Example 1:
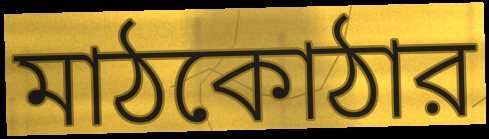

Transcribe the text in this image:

মাঠকোঠার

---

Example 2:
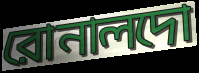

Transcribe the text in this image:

রোনালদো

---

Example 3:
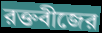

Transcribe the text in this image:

রক্তবীজের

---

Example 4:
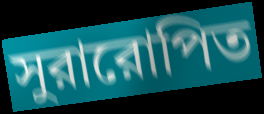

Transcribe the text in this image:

সুরারোপিত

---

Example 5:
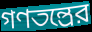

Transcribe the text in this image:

গণতন্ত্রের